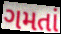
ગમતાં